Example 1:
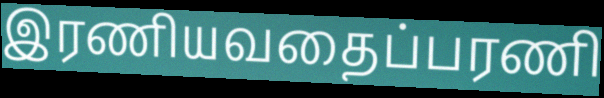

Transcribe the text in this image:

இரணியவதைப்பரணி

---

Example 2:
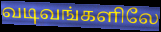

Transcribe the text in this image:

வடிவங்களிலே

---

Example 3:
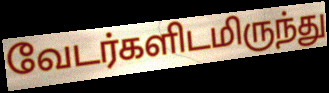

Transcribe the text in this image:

வேடர்களிடமிருந்து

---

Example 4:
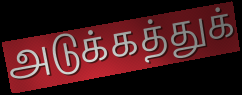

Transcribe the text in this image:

அடுக்கத்துக்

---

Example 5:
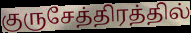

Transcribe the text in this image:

குருசேத்திரத்தில்